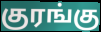
குரங்கு